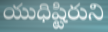
యుధిష్టిరుని